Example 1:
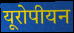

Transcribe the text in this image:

यूरोपीयन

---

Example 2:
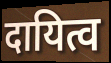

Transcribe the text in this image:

दायित्व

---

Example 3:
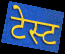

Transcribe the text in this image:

टेस्ट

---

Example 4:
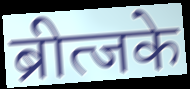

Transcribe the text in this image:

ब्रीत्जके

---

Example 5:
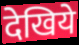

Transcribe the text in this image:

देखिये